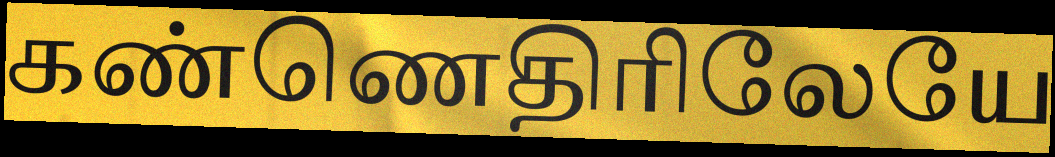
கண்ணெதிரிலேயே